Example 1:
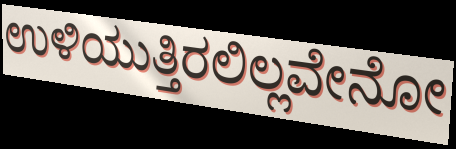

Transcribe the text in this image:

ಉಳಿಯುತ್ತಿರಲಿಲ್ಲವೇನೋ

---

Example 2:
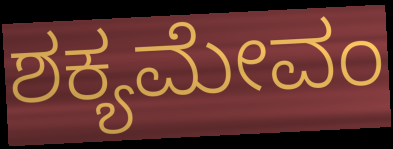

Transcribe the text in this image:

ಶಕ್ಯಮೇವಂ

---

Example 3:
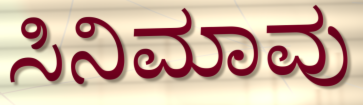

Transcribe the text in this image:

ಸಿನಿಮಾವು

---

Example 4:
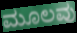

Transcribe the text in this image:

ಮೂಲವು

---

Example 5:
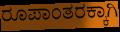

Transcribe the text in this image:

ರೂಪಾಂತರಕ್ಕಾಗಿ